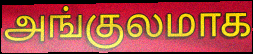
அங்குலமாக